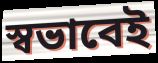
স্বভাবেই